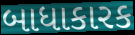
બાધાકારક